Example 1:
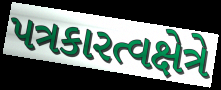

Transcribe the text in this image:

પત્રકારત્વક્ષેત્રે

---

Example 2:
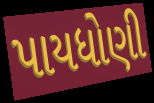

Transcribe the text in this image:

પાયધોણી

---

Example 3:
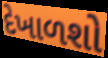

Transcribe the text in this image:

દેખાળશો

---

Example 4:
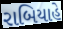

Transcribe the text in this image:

રાબિયાહે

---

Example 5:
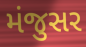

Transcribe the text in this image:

મંજુસર